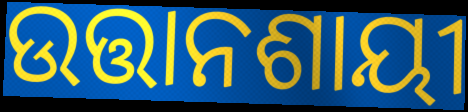
ଉତ୍ତାନଶାୟୀ